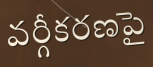
వర్గీకరణపై